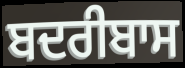
ਬਦਰੀਬਾਸ